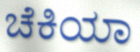
ಚೆಕಿಯಾ